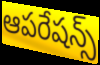
ఆపరేషన్స్